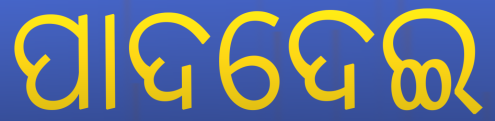
ପାଦଦେଇ